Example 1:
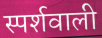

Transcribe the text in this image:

स्पर्शवाली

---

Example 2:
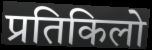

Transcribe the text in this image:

प्रतिकिलो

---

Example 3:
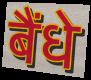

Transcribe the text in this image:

बैंधे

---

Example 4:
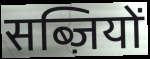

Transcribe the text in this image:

सब्ज़ियों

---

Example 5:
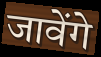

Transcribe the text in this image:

जावेंगे